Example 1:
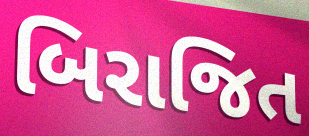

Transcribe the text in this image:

બિરાજિત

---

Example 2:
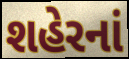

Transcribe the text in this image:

શહેરનાં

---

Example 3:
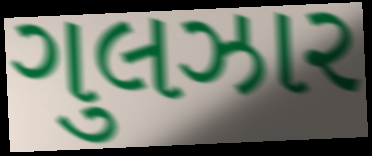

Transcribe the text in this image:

ગુલઝાર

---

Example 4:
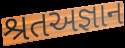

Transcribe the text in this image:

શ્રતઅજ્ઞાન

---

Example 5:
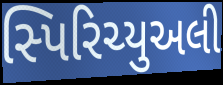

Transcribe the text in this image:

સ્પિરિચ્યુઅલી